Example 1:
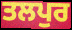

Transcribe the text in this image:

ਤਲਪੁਰ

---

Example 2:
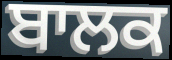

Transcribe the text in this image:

ਬਾਲਕ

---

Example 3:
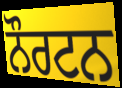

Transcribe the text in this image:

ਨੌਰਟਨ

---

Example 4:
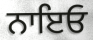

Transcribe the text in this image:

ਨਾਇਓ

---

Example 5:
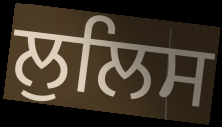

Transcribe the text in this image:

ਲੁਲਿਸ